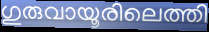
ഗുരുവായൂരിലെത്തി